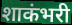
शाकंभरी